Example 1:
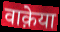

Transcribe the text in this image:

वाक़ेया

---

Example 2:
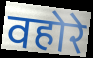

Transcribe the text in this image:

वहोरे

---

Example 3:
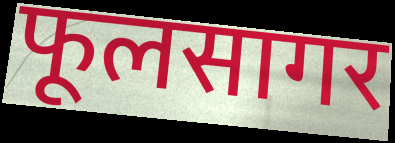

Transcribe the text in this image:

फूलसागर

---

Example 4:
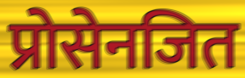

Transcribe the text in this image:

प्रोसेनजित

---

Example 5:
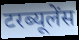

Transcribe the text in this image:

टरब्यूलेंस